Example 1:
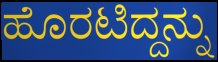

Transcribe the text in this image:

ಹೊರಟಿದ್ದನ್ನು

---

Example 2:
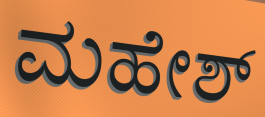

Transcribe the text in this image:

ಮಹೇಶ್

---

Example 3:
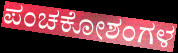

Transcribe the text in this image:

ಪಂಚಕೋಶಂಗಳ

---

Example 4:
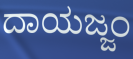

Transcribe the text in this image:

ದಾಯಜ್ಜಂ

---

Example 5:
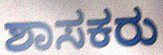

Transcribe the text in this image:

ಶಾಸಕರು